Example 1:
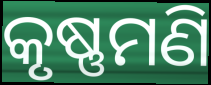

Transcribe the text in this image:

କୃଷ୍ଣମଣି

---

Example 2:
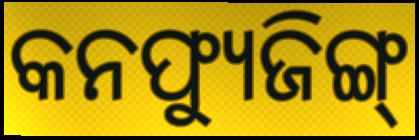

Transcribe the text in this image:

କନଫ୍ୟୁଜିଙ୍ଗ୍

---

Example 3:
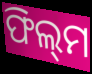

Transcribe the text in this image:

ଫିଲ୍‌ମ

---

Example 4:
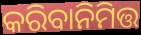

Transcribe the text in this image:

କରିବାନିମିତ୍ତ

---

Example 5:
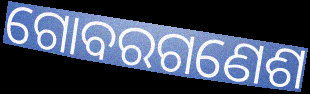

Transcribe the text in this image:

ଗୋବରଗଣେଶ